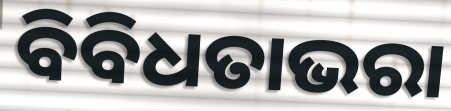
ବିବିଧତାଭରା